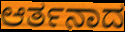
ಆರ್ತನಾದ